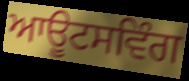
ਆਊਟਸਵਿੰਗ